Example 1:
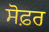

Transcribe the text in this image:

ਸੋਫ਼ਰ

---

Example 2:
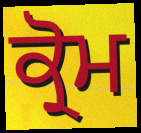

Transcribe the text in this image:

ਕ੍ਰੋਮ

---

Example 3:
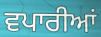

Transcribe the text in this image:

ਵਪਾਰੀਆਂ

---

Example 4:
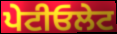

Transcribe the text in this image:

ਪੇਟੀਓਲੇਟ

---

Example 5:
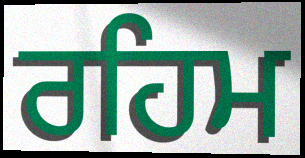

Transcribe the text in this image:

ਰਹਿਮ